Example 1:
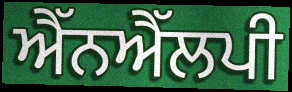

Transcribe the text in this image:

ਐੱਨਐੱਲਪੀ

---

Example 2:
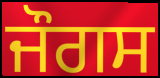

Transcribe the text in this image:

ਜੌਗਸ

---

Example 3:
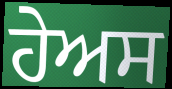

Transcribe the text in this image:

ਹੇਅਸ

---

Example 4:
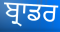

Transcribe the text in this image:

ਬ੍ਰਾਡਰ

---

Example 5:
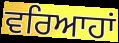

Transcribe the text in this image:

ਵਰਿਆਹਾਂ